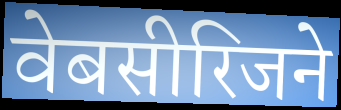
वेबसीरिजने